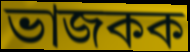
ভাজকক